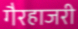
गैरहाजरी